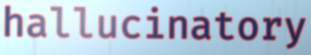
hallucinatory